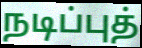
நடிப்புத்